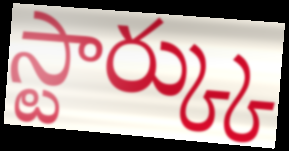
స్టార్క్కు